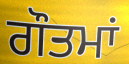
ਗੌਤਮਾਂ